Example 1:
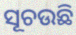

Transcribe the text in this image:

ସୂଚଉଛି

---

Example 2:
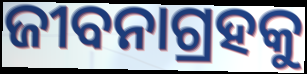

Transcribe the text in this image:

ଜୀବନାଗ୍ରହକୁ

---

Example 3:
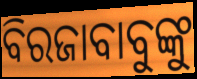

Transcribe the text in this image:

ବିରଜାବାବୁଙ୍କୁ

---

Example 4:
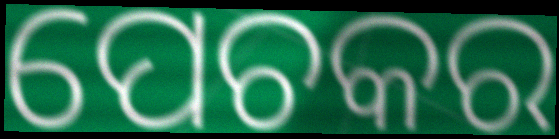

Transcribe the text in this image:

ପେଚକର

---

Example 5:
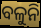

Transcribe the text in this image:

ବଳୁନି